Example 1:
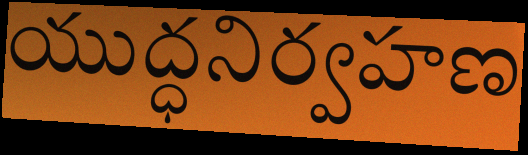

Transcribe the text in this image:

యుద్ధనిర్వహణ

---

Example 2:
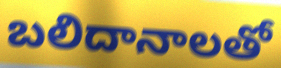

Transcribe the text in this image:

బలిదానాలతో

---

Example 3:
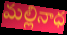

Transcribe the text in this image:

మల్లినాధ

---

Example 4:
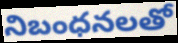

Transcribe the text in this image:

నిబంధనలతో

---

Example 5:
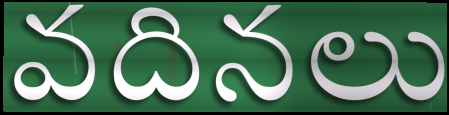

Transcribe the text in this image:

వదినలు